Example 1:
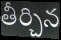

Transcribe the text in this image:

తీర్చిన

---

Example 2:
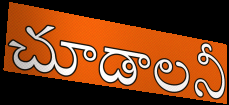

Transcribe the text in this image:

చూడాలనీ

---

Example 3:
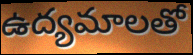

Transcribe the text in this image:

ఉద్యమాలతో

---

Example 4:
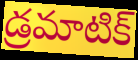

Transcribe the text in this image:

డ్రమాటిక్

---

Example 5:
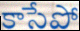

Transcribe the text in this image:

కాసేపో